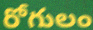
రోగులం